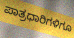
ಪಾತ್ರಧಾರಿಗಳಿಗೂ